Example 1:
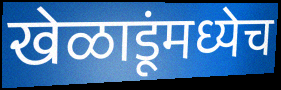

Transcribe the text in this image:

खेळाडूंमध्येच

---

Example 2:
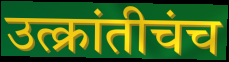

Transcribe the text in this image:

उत्क्रांतीचंच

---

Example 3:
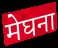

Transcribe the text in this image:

मेघना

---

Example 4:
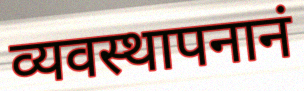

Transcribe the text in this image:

व्यवस्थापनानं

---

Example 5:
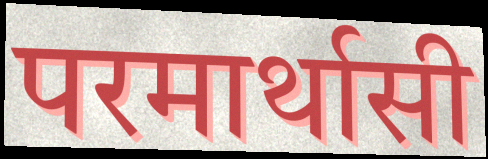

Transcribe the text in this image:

परमार्थासी